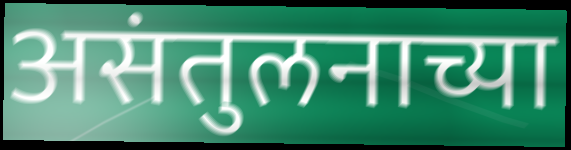
असंतुलनाच्या